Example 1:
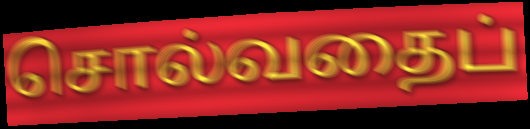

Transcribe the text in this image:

சொல்வதைப்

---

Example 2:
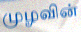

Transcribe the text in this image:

முழவின்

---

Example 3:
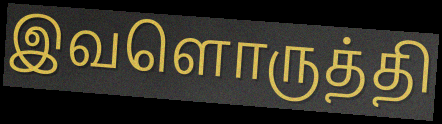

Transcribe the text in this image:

இவளொருத்தி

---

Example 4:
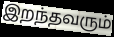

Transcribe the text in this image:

இறந்தவரும்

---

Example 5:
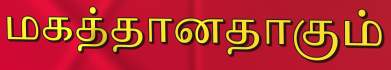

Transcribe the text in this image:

மகத்தானதாகும்